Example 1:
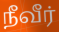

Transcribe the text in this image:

நீவீர்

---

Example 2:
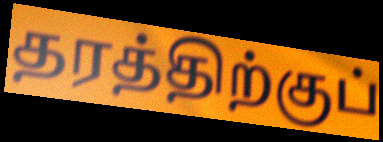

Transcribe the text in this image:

தரத்திற்குப்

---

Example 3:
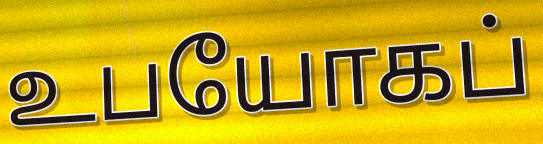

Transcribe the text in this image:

உபயோகப்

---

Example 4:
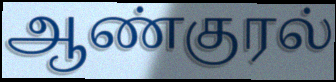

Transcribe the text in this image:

ஆண்குரல்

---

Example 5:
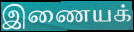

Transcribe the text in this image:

இணையக்